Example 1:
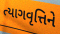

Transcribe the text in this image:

ત્યાગવૃત્તિને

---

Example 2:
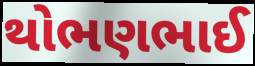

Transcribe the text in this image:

થોભણભાઈ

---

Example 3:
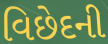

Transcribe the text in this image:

વિછેદની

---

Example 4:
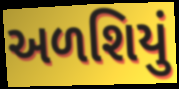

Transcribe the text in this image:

અળશિયું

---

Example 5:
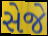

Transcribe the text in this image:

સેજે